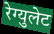
रेग्‍युलेट